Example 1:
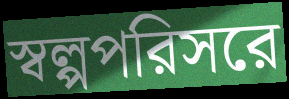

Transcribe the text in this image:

স্বল্পপরিসরে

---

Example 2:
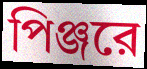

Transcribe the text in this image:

পিঞ্জরে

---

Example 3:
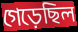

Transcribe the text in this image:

গেড়েছিল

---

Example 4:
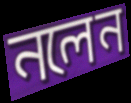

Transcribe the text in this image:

নলেন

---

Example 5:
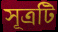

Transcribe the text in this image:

সূত্রটি